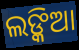
ଲଙ୍କିଆ